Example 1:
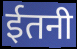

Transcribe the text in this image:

ईतनी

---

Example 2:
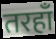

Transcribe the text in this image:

तरहाँ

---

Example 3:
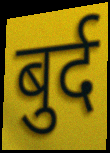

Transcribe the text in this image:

बुर्द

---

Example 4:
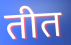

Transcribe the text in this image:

तीत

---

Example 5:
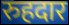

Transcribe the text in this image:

रुहदार